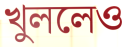
খুললেও